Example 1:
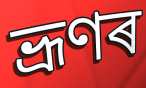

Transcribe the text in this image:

ভ্ৰূণৰ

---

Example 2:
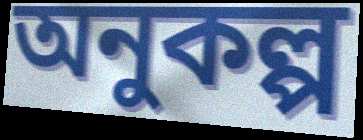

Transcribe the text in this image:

অনুকল্প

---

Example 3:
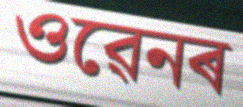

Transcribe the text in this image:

ওৱেনৰ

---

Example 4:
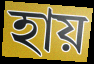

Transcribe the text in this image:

হায়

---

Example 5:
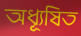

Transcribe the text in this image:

অধ্যূষিত